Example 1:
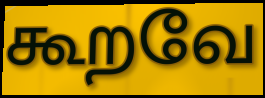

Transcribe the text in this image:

கூறவே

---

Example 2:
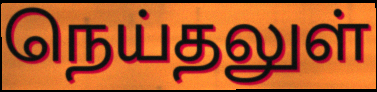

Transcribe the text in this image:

நெய்தலுள்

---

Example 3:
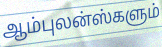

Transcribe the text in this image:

ஆம்புலன்ஸ்களும்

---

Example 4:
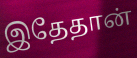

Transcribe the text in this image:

இதேதான்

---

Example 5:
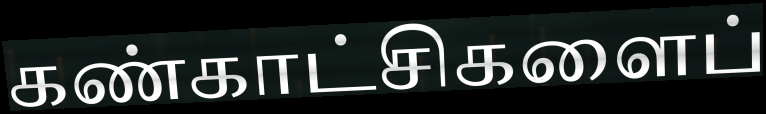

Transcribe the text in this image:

கண்காட்சிகளைப்